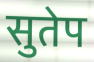
सुतेप